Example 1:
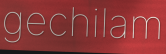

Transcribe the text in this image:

gechilam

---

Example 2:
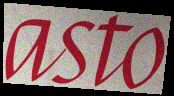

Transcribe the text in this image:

asto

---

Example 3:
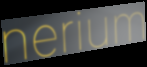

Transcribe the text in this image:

nerium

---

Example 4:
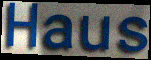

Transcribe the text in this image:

Haus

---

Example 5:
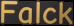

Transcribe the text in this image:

Falck